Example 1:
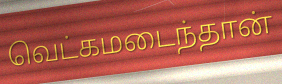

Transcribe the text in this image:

வெட்கமடைந்தான்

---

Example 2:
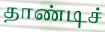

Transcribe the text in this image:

தாண்டிச்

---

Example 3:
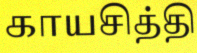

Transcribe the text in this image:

காயசித்தி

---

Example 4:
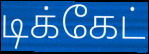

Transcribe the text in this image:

டிக்கேட்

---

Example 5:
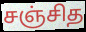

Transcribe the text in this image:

சஞ்சித